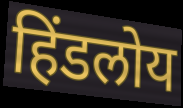
हिंडलोय